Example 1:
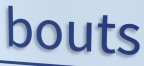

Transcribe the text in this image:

bouts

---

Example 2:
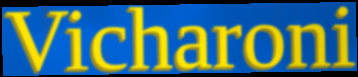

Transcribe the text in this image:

Vicharoni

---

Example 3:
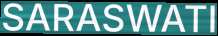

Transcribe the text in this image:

SARASWATI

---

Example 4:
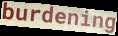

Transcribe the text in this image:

burdening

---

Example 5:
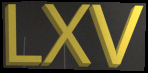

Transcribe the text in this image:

LXV